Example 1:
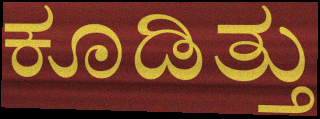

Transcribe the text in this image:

ಕೂಡಿತ್ತು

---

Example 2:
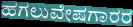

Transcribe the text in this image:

ಹಗಲುವೇಷಗಾರರ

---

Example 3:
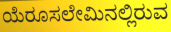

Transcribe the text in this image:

ಯೆರೂಸಲೇಮಿನಲ್ಲಿರುವ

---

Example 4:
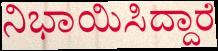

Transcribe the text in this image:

ನಿಭಾಯಿಸಿದ್ದಾರೆ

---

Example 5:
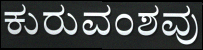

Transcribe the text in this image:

ಕುರುವಂಶವು